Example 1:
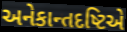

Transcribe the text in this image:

અનેકાન્તદષ્ટિએ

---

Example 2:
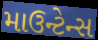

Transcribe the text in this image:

માઉન્ટેન્સ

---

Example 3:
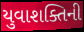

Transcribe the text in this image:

યુવાશક્તિની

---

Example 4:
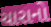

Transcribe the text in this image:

ચારાનો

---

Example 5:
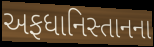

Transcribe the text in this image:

અફધાનિસ્તાનના